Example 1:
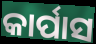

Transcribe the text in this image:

କାର୍ପାସ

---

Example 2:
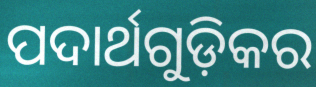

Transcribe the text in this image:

ପଦାର୍ଥଗୁଡ଼ିକର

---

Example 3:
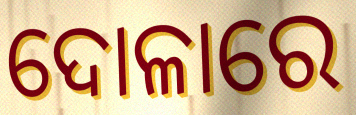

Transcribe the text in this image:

ଦୋଳାରେ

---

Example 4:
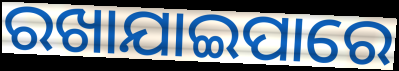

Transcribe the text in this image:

ରଖାଯାଇପାରେ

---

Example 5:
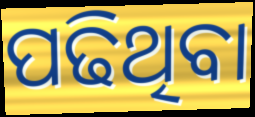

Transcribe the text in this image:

ପଢିଥିବା